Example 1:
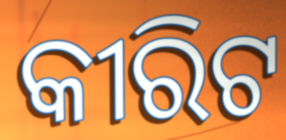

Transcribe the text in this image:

କୀରିଟ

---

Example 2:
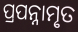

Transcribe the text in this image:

ପ୍ରପନ୍ନାମୃତ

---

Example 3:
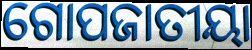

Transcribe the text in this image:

ଗୋପଜାତୀୟା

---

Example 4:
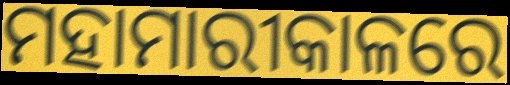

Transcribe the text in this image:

ମହାମାରୀକାଳରେ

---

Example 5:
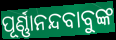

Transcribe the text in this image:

ପୂର୍ଣ୍ଣାନନ୍ଦବାବୁଙ୍କ